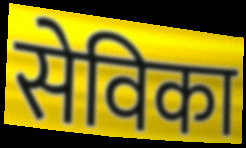
सेविका